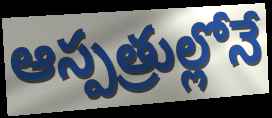
ఆస్పత్రుల్లోనే